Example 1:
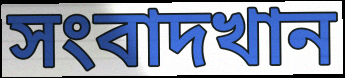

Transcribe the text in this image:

সংবাদখান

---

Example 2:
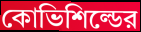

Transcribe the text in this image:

কোভিশিল্ডের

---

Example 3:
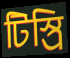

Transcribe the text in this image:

টিস্ত্রি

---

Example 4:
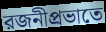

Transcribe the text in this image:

রজনীপ্রভাতে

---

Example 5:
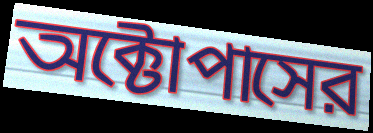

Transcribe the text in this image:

অক্টোপাসের